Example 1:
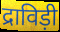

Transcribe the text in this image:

द्राविड़ी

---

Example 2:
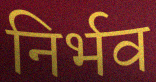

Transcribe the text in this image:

निर्भव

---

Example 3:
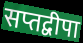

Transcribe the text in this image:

सप्तद्वीपा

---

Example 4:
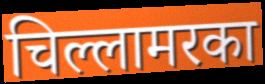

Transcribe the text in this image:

चिल्लामरका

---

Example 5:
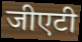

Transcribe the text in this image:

जीएटी